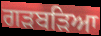
ਗੜਬੜਿਆ